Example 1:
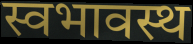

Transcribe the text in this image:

स्वभावस्थ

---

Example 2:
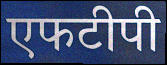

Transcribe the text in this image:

एफटीपी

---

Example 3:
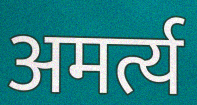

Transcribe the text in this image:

अमर्त्य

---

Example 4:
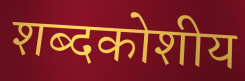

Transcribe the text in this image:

शब्दकोशीय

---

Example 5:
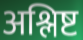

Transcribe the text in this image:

अश्लिष्ट